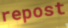
repost